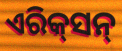
ଏରିକ୍‌ସନ୍